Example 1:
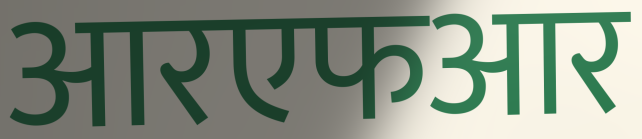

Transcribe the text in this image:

आरएफआर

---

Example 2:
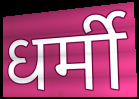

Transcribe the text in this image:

धर्मी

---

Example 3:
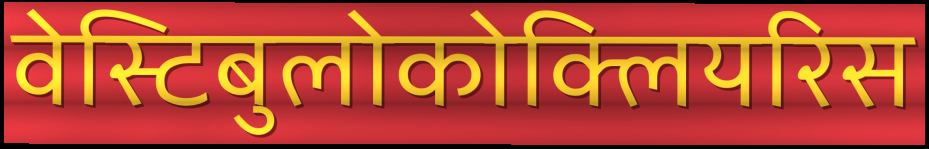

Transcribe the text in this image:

वेस्टिबुलोकोक्लियरिस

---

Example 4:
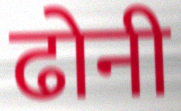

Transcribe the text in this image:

ढोनी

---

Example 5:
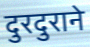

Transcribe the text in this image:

दुरदुराने